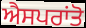
ਐਸਪਰਾਂਤੋ